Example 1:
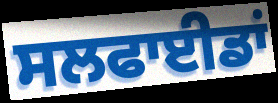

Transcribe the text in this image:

ਸਲਫਾਈਡਾਂ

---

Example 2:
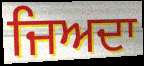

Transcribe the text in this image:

ਜਿਅਦਾ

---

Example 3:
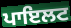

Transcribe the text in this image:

ਪਾਇਲਟ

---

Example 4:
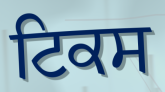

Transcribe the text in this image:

ਟਿਕਸ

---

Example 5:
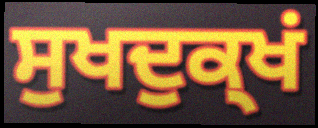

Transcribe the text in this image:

ਸੁਖਦੁਕ੍ਖਂ